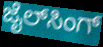
ಜೈಲ್‌ಸಿಂಗ್